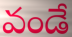
వండే